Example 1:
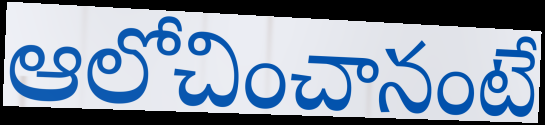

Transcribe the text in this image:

ఆలోచించానంటే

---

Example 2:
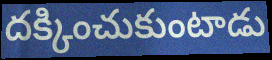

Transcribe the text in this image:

దక్కించుకుంటాడు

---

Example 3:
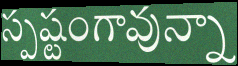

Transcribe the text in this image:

స్పష్టంగావున్నా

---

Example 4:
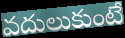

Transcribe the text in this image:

వదులుకుంటే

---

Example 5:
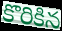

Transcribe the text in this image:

కొరికిన